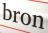
bron